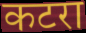
कटरा